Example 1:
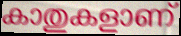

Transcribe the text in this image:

കാതുകളാണ്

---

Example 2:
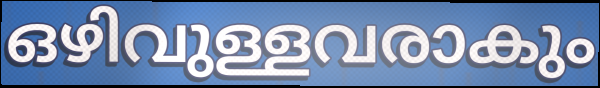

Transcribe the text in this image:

ഒഴിവുള്ളവരാകും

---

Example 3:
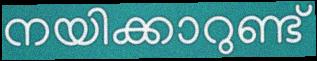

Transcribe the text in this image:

നയിക്കാറുണ്ട്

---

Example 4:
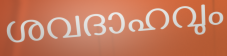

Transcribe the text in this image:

ശവദാഹവും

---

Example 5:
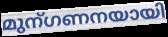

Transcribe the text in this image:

മുന്ഗണനയായി